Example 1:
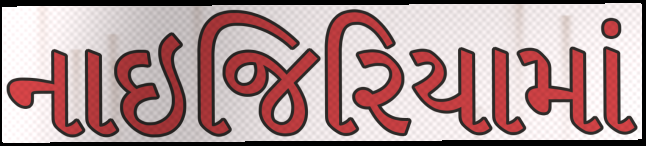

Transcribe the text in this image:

નાઇજિરિયામાં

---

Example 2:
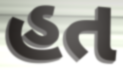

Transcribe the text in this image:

હત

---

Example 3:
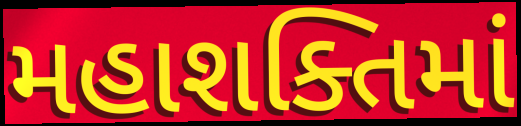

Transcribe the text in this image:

મહાશક્તિમાં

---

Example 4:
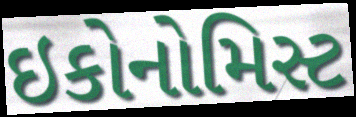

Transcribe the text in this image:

ઇકોનોમિસ્ટ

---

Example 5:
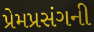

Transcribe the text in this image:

પ્રેમપ્રસંગની